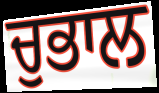
ਚੁਭਾਲ